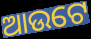
ଆଉଟେ